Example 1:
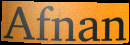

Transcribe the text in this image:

Afnan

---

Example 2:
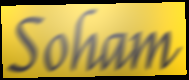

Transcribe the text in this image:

Soham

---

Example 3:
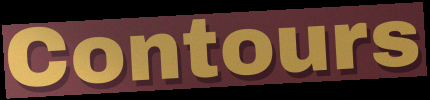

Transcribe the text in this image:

Contours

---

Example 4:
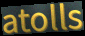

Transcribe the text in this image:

atolls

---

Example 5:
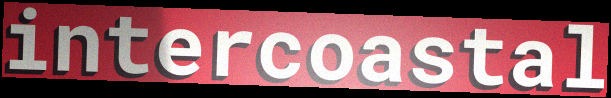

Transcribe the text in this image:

intercoastal